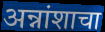
अन्नांशाचा